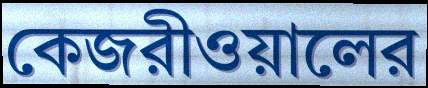
কেজরীওয়ালের